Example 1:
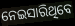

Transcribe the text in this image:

ନେଇସାରିଥିବେ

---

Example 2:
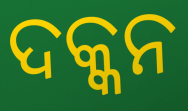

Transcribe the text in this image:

ଦକ୍କନ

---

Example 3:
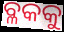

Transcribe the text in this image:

ବ୍ଳକକୁ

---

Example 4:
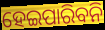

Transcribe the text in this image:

ହେଇପାରିବନି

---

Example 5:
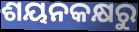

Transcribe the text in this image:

ଶୟନକକ୍ଷରୁ